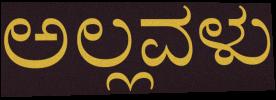
ಅಲ್ಲವಳು